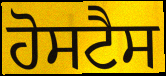
ਹੋਸਟੈਸ